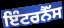
ਇੰਟਰਨੈੱਸ